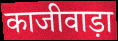
काजीवाड़ा